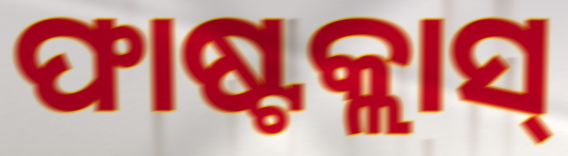
ଫାଷ୍ଟକ୍ଲାସ୍